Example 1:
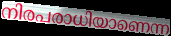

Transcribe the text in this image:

നിരപരാധിയാണെന്ന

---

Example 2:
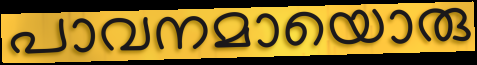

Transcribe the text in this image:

പാവനമായൊരു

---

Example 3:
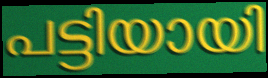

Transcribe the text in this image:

പട്ടിയായി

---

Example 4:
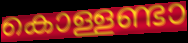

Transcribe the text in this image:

കൊള്ളണ്ടാ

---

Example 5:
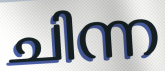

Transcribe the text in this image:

ചിന്ന